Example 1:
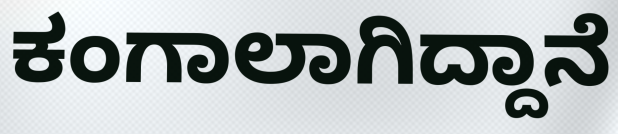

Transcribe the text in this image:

ಕಂಗಾಲಾಗಿದ್ದಾನೆ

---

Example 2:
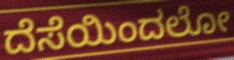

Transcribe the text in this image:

ದೆಸೆಯಿಂದಲೋ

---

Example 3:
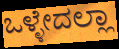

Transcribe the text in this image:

ಒಳ್ಳೇದಲ್ಲಾ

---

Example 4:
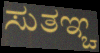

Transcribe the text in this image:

ಸುತಞ್ಚ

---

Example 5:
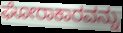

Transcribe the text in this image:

ಘೋರಾಕಾರವನ್ನು